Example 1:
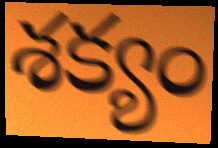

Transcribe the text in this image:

శక్యం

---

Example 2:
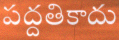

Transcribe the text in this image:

పద్దతికాదు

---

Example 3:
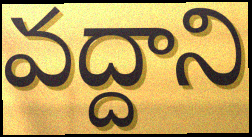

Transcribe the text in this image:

వద్దాని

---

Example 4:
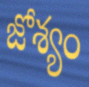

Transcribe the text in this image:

జోశ్యం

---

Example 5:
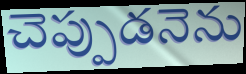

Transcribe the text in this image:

చెప్పుడనెను